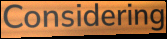
Considering